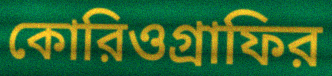
কোরিওগ্রাফির